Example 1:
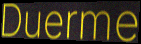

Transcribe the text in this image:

Duerme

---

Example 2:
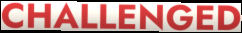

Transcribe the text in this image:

CHALLENGED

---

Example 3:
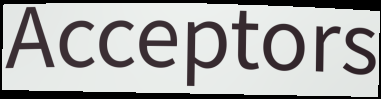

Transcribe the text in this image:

Acceptors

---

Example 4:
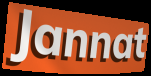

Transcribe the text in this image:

Jannat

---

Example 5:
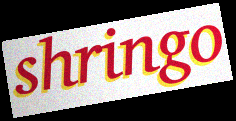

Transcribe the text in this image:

shringo